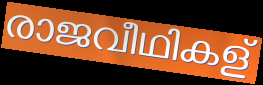
രാജവീഥികള്